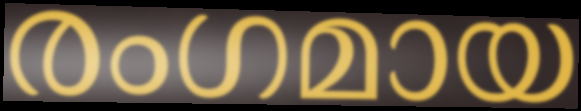
രംഗമായ